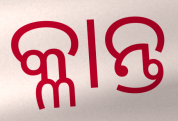
କ୍ଳାନ୍ତ